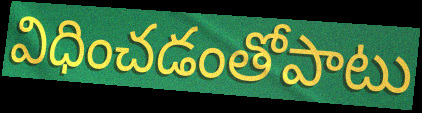
విధించడంతోపాటు